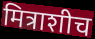
मित्राशीच